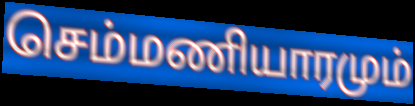
செம்மணியாரமும்